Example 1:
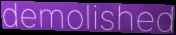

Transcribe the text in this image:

demolished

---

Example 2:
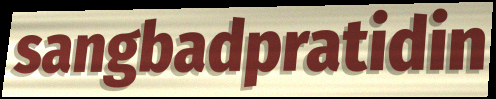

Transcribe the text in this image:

sangbadpratidin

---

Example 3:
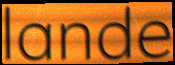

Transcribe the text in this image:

lande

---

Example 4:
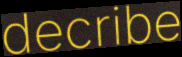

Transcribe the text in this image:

decribe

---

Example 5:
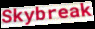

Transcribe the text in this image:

Skybreak